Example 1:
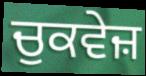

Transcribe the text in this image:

ਚੁਕਵੇਜ਼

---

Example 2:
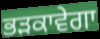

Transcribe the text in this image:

ਭੜਕਾਵੇਗਾ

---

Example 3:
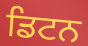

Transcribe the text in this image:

ਡਿਟਨ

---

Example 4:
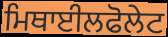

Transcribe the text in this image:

ਮਿਥਾਈਲਫੋਲੇਟ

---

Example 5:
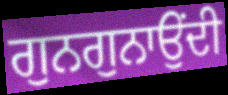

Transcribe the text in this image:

ਗੁਨਗੁਨਾਉਂਦੀ